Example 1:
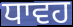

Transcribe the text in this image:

ਧਾਵਹ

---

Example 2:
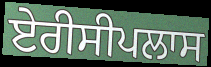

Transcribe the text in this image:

ਏਰੀਸੀਪਲਾਸ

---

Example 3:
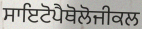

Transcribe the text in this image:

ਸਾਇਟੋਪੈਥੋਲੋਜੀਕਲ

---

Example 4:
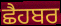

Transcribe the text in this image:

ਛੈਹਬਰ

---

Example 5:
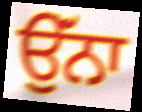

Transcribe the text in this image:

ਉਂੱਨਾ